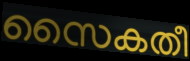
സൈകതീ